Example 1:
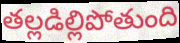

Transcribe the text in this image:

తల్లడిల్లిపోతుంది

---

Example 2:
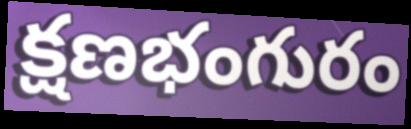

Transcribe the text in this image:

క్షణభంగురం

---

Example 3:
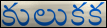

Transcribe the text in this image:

కులుకక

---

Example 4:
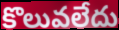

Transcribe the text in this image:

కొలువలేదు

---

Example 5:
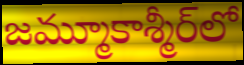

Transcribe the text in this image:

జమ్మూకాశ్మీర్‌లో